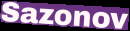
Sazonov